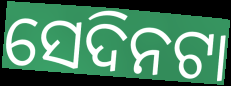
ସେଦିନଟା